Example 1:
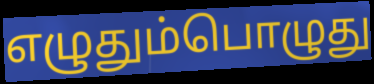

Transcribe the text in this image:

எழுதும்பொழுது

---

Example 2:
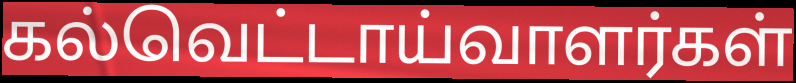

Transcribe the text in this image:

கல்வெட்டாய்வாளர்கள்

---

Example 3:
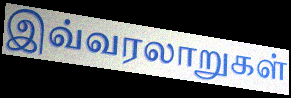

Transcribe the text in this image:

இவ்வரலாறுகள்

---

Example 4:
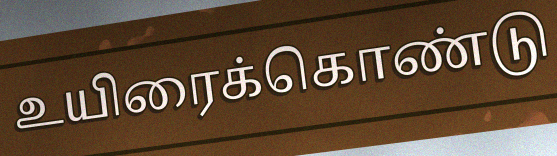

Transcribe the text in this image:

உயிரைக்கொண்டு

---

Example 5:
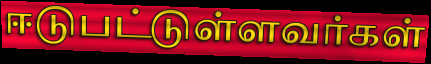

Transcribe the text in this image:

ஈடுபட்டுள்ளவர்கள்